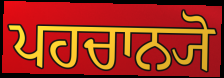
ਪਹਚਾਨ੍ਯੋ